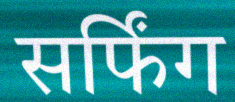
सर्फिंग